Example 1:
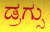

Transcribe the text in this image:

ಡ್ರಗ್ಸು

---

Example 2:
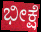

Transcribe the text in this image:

ಭೀಕ್ಷೆ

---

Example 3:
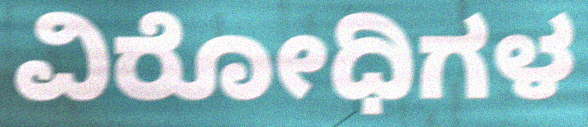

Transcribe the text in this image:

ವಿರೋಧಿಗಳ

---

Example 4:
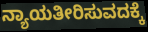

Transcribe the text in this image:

ನ್ಯಾಯತೀರಿಸುವದಕ್ಕೆ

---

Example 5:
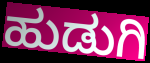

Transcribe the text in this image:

ಹುಡುಗಿ